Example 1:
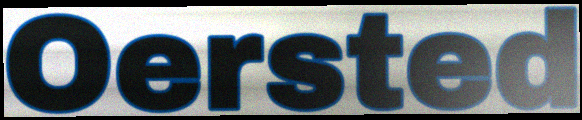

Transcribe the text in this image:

Oersted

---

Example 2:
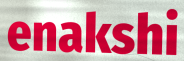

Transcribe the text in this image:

enakshi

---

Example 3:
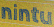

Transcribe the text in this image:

nintu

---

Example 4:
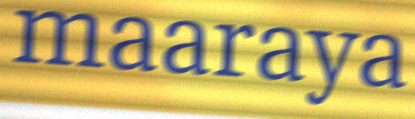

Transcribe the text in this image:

maaraya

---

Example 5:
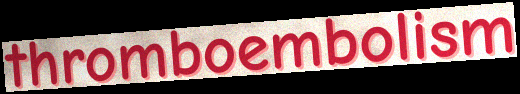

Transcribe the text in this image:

thromboembolism